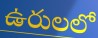
ఉరులలో